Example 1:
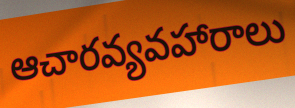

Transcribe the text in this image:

ఆచారవ్యవహారాలు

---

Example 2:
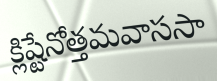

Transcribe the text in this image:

క్లిష్టేనోత్తమవాససా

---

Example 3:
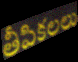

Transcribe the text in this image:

తీపికలలు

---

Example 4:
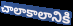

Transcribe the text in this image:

చాలాకాలానికి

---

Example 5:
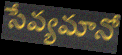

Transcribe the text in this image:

సేవ్యమానో